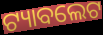
ଟ୍ୟାବଲେଟ